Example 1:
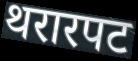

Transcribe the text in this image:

थरारपट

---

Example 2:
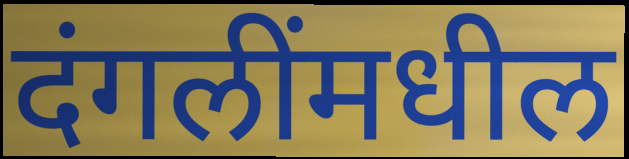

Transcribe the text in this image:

दंगलींमधील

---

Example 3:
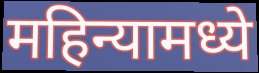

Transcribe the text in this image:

महिन्यामध्ये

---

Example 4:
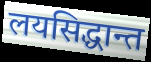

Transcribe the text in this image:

लयसिद्धान्त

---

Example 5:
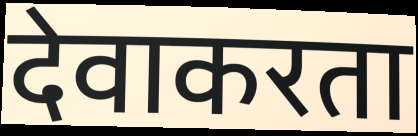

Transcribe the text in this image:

देवाकरता